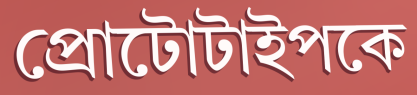
প্রোটোটাইপকে